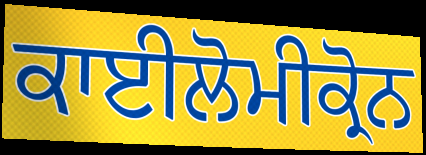
ਕਾਈਲੋਮੀਕ੍ਰੋਨ